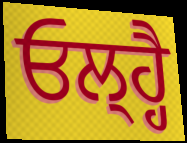
ਓਲ੍ਹ੍ਹੈ